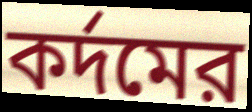
কর্দমের